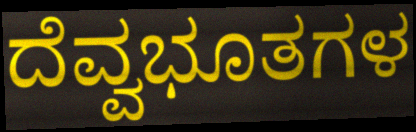
ದೆವ್ವಭೂತಗಳ